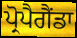
ਪ੍ਰੋਪੈਗੈਂਡਾ